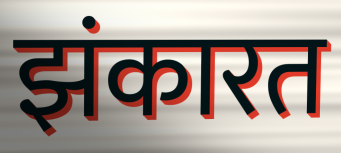
झंकारत